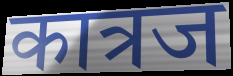
कात्रज